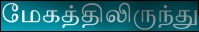
மேகத்திலிருந்து